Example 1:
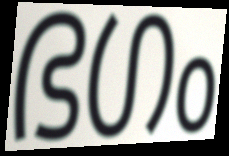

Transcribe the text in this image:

ഭഗം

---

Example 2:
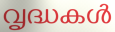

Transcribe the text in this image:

വൃദ്ധകൾ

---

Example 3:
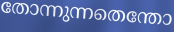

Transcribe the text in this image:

തോന്നുന്നതെന്തോ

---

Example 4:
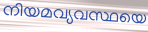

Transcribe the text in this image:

നിയമവ്യവസ്ഥയെ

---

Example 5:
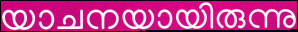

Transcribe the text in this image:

യാചനയായിരുന്നു